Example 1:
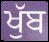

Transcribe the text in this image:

ਖੁੱਬ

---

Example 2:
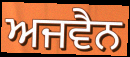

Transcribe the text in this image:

ਅਜਵੈਨ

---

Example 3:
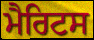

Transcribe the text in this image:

ਮੈਰਿਟਸ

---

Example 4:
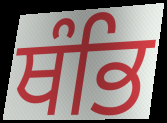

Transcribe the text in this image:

ਥੰਭਿ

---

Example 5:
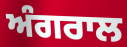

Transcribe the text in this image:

ਅੰਗਰਾਲ